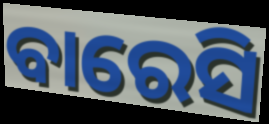
ବାରେସି